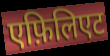
एफ़िलिएट